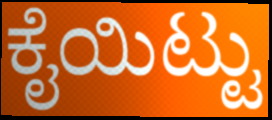
ಕೈಯಿಟ್ಟು